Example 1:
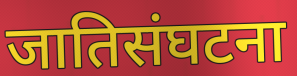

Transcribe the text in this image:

जातिसंघटना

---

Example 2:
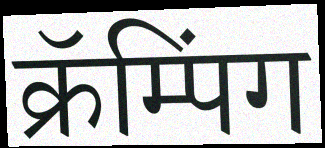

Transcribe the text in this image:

क्रॅम्पिंग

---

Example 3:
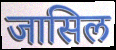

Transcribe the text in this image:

जासिल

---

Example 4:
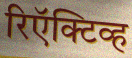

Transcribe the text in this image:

रिऍक्टिव्ह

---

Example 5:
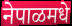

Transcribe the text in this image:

नेपाळमधे